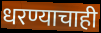
धरण्याचाही